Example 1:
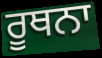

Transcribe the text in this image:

ਰੂਥਨਾ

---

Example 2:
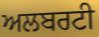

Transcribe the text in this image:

ਅਲਬਰਟੀ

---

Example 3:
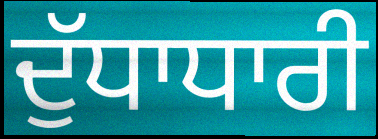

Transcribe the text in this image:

ਦੁੱਧਾਧਾਰੀ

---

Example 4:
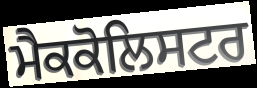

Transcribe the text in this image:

ਮੈਕਕੋਲਿਸਟਰ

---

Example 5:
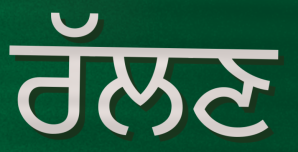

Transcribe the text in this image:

ਰੱਲਣ